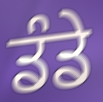
ਡੰਡੇ